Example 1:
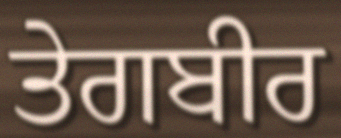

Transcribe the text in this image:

ਤੇਗਬੀਰ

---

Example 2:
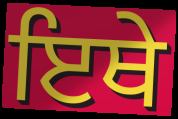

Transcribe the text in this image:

ਇਥੇ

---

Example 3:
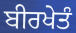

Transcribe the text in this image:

ਬੀਰਖੇਤੰ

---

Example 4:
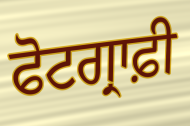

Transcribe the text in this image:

ਫੋਟਗ੍ਰਾਫ਼ੀ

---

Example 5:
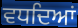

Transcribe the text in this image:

ਵਧਦਿਆਂ